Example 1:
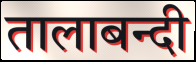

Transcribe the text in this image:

तालाबन्दी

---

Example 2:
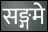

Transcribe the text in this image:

सङ्गमे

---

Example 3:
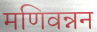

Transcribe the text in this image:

मणिवन्नन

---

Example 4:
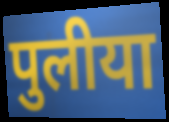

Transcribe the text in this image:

पुलीया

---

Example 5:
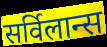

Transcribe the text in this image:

सर्विलान्स